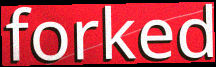
forked